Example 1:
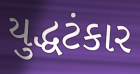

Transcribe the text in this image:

યુદ્ધટંકાર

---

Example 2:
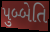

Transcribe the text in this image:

પુબ્બેતિ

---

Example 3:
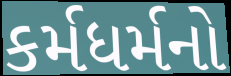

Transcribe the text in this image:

કર્મધર્મનો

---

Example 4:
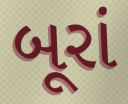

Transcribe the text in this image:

બૂરાં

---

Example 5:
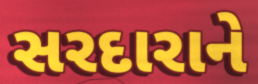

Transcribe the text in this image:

સરદારાને